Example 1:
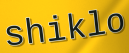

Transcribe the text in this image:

shiklo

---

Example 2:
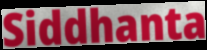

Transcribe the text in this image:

Siddhanta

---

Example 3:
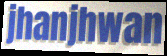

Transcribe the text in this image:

jhanjhwan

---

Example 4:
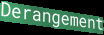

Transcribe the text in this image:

Derangement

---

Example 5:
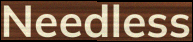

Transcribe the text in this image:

Needless